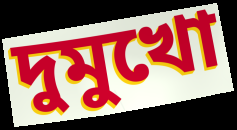
দুমুখো